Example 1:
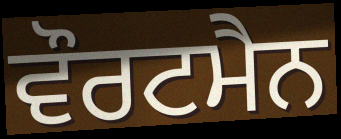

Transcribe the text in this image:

ਵੌਰਟਮੈਨ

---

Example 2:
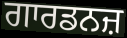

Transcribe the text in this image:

ਗਾਰਡਨਜ਼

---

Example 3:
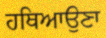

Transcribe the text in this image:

ਹਥਿਆਉਣਾ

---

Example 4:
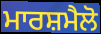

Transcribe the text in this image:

ਮਾਰਸ਼ਮੈਲੋ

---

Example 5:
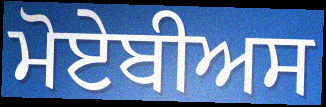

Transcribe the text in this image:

ਮੋਏਬੀਅਸ